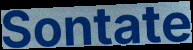
Sontate